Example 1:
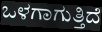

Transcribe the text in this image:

ಒಳಗಾಗುತ್ತಿದೆ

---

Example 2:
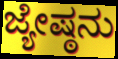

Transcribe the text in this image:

ಜ್ಯೇಷ್ಠನು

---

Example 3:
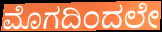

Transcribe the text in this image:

ಮೊಗದಿಂದಲೇ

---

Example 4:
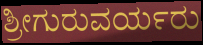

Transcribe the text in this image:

ಶ್ರೀಗುರುವರ್ಯರು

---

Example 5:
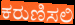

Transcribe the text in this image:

ಕರುಣಿಸಲಿ